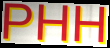
PHH